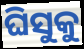
ଘିସୁକୁ